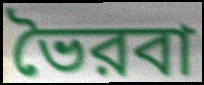
ভৈরবা